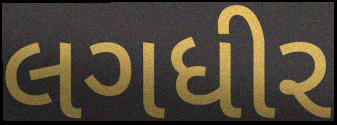
લગધીર